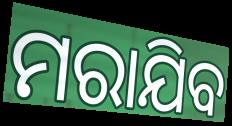
ମରାଯିବ